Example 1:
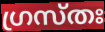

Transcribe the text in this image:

ഗ്രസ്തഃ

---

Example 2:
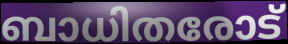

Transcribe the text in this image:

ബാധിതരോട്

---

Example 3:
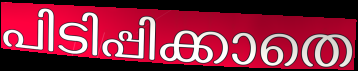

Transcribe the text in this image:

പിടിപ്പിക്കാതെ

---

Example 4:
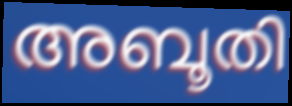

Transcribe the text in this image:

അബൂതി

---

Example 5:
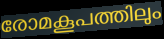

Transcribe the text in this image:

രോമകൂപത്തിലും